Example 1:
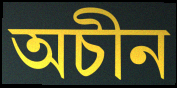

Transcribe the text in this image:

অচীন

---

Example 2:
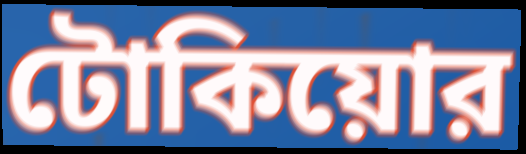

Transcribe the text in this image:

টোকিয়োর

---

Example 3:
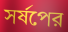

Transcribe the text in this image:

সর্ষপের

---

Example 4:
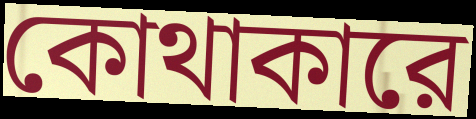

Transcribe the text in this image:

কোথাকারে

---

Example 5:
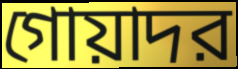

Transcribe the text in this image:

গোয়াদর